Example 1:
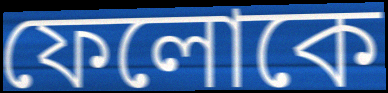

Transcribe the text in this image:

ফেলোকে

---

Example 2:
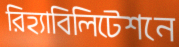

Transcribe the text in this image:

রিহ্যাবিলিটেশনে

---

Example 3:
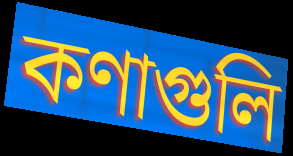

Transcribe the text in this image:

কণাগুলি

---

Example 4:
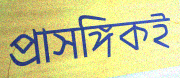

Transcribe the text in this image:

প্রাসঙ্গিকই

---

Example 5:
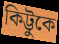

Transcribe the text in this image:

কিট্টুকে